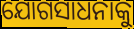
ଯୋଗସାଧନାକୁ